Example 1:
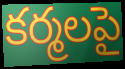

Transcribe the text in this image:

కర్మలపై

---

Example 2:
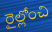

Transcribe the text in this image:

రైల్లోంచి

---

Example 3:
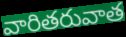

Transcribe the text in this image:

వారితరువాత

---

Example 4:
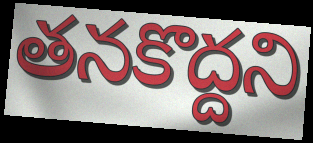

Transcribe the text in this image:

తనకొద్దని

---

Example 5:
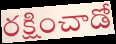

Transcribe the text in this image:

రక్షించాడో